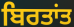
ਬਿਰਤਾਂਤ